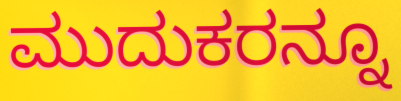
ಮುದುಕರನ್ನೂ